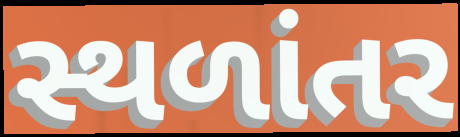
સ્થળાંતર